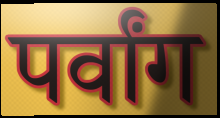
पर्वांग